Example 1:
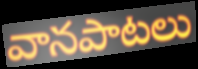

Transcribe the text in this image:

వానపాటలు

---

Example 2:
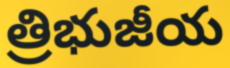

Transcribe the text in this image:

త్రిభుజీయ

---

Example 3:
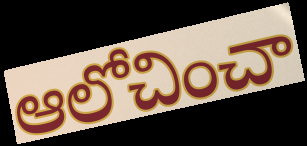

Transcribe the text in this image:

ఆలోచించా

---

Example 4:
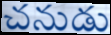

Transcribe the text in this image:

చనుడు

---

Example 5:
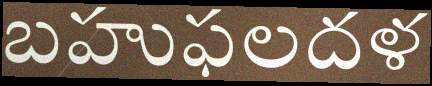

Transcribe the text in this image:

బహుఫలదళ